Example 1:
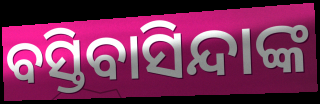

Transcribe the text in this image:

ବସ୍ତିବାସିନ୍ଦାଙ୍କ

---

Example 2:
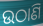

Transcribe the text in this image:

ଉଠାଣି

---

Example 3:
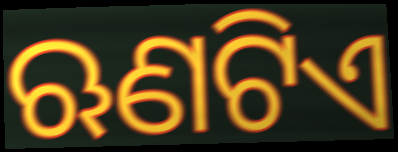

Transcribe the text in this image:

ଋଣଟିଏ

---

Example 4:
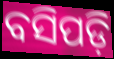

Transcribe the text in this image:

ବସିପଡ଼ି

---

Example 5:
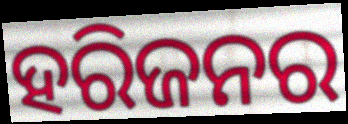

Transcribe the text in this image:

ହରିଜନର